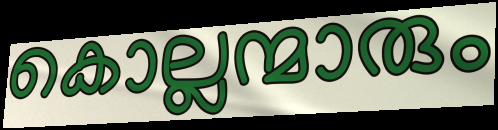
കൊല്ലന്മാരും